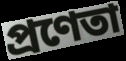
প্রণেতা